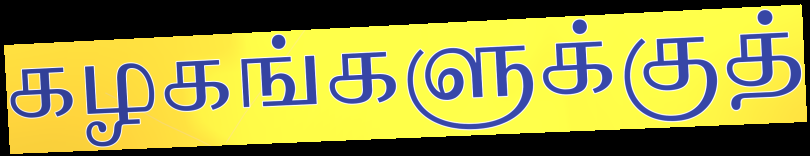
கழகங்களுக்குத்